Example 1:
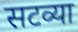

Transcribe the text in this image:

सटव्या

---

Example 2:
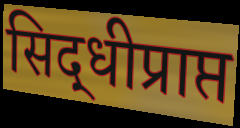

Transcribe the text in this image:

सिद्धीप्राप्त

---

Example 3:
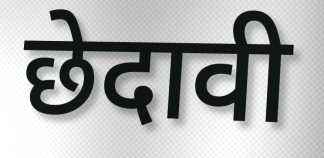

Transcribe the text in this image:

छेदावी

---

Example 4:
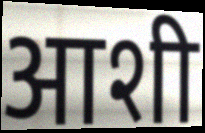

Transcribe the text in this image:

आशी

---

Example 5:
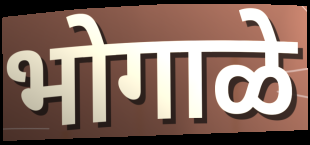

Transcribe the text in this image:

भोगाळे